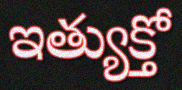
ఇత్యుక్తో